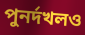
পুনর্দখলও